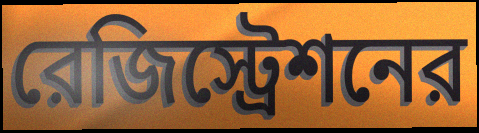
রেজিস্ট্রেশনের